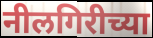
नीलगिरीच्या